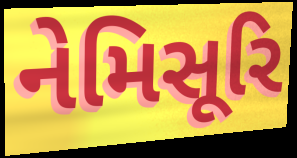
નેમિસૂરિ